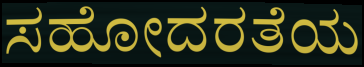
ಸಹೋದರತೆಯ